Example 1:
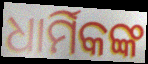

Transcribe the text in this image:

ଧାର୍ମିକଙ୍କ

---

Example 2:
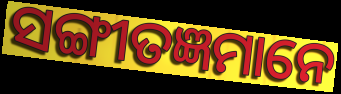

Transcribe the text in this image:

ସଙ୍ଗୀତଜ୍ଞମାନେ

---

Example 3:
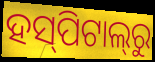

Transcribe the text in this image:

ହସ୍‌ପିଟାଲ୍‌ରୁ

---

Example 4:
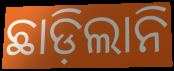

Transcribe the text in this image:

ଛାଡ଼ିଲାନି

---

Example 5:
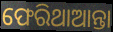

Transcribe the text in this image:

ଫେରିଥାଆନ୍ତା